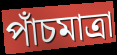
পাঁচমাত্রা